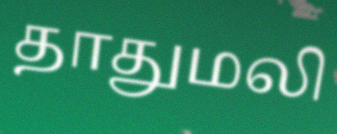
தாதுமலி